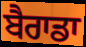
ਬੈਰਾਡਾ